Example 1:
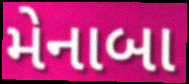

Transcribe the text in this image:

મેનાબા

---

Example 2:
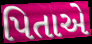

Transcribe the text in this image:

પિતાએ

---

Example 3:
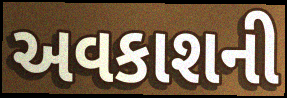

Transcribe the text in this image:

અવકાશની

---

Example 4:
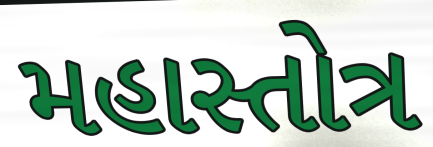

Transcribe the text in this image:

મહાસ્તોત્ર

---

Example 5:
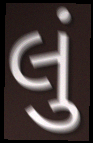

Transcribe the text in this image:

લું